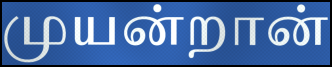
முயன்றான்